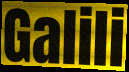
Galili